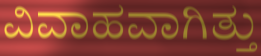
ವಿವಾಹವಾಗಿತ್ತು